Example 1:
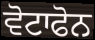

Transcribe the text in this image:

ਵੋਟਾਫੋਨ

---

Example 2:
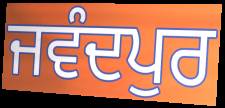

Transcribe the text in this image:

ਜਵੰਦਪੁਰ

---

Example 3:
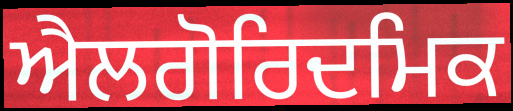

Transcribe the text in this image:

ਐਲਗੋਰਿਦਮਿਕ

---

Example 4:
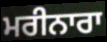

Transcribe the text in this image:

ਮਰੀਨਾਰਾ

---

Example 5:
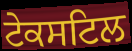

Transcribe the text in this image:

ਟੇਕਸਟਿਲ